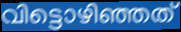
വിട്ടൊഴിഞ്ഞത്